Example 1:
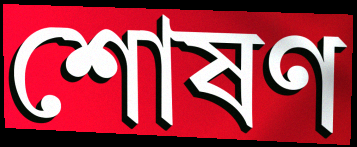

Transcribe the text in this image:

শোষণ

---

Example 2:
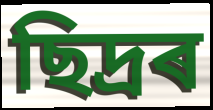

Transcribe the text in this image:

ছিদ্ৰৰ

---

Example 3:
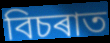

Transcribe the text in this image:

বিচৰাত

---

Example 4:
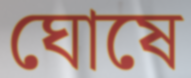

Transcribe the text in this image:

ঘোষে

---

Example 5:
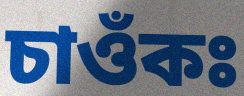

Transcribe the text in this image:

চাওঁকঃ